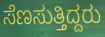
ಸೆಣಸುತ್ತಿದ್ದರು